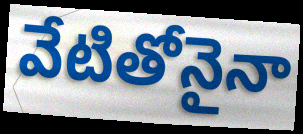
వేటితోనైనా